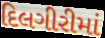
દિલગીરીમાં